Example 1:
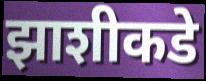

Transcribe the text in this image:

झाशीकडे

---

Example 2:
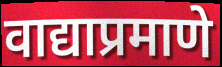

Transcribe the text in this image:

वाद्याप्रमाणे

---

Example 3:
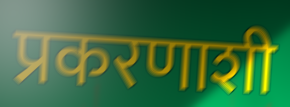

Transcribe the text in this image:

प्रकरणाशी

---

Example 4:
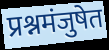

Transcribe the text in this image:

प्रश्नमंजुषेत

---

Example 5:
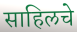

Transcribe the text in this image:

साहिलचे